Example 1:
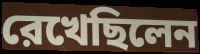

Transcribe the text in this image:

রেখেছিলেন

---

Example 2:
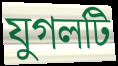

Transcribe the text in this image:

যুগলটি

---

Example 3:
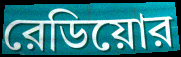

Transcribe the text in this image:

রেডিয়োর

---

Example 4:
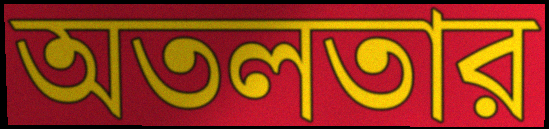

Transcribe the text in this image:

অতলতার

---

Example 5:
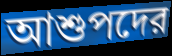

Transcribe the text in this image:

আশুপদের